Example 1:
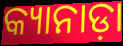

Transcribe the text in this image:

କ୍ୟାନାଡ଼ା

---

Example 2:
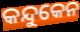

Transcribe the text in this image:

କନ୍ଦୁକେନ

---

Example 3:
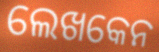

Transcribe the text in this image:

ଲେଖକେନ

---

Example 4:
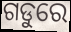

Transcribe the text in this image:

ଗଡୁରେ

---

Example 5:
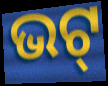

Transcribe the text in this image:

ଭଟ୍